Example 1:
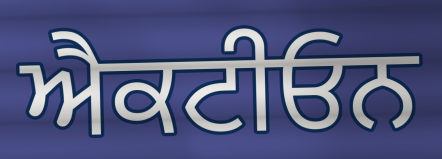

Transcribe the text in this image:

ਐਕਟੀਓਨ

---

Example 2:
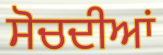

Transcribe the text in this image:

ਸੋਚਦੀਆਂ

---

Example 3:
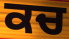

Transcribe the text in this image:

ਕਚ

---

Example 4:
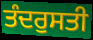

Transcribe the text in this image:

ਤੰਦਰੁਸਤੀ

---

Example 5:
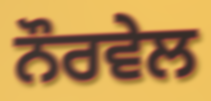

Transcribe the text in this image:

ਨੌਰਵੇਲ